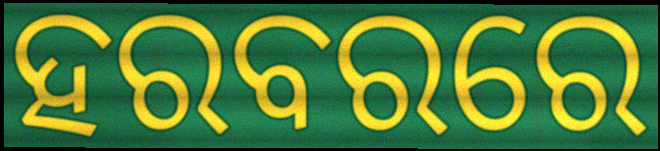
ହରବରରେ